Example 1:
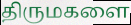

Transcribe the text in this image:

திருமகளை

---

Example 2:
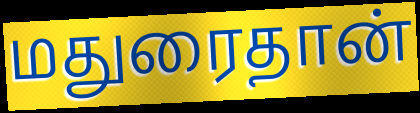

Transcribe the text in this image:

மதுரைதான்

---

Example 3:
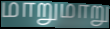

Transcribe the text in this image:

மாறுமாறு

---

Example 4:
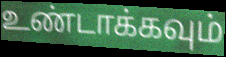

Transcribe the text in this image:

உண்டாக்கவும்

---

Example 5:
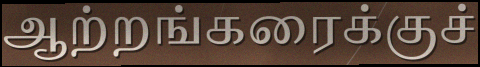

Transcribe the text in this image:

ஆற்றங்கரைக்குச்